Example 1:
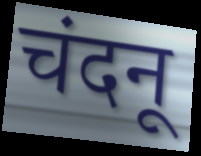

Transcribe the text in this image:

चंदनू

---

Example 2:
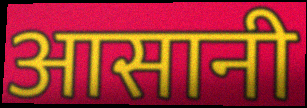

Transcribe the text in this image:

आसानी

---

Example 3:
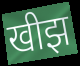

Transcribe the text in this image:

खीझ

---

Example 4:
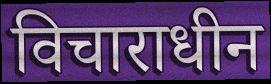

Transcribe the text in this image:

विचाराधीन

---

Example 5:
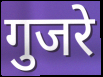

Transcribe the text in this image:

गुजरे